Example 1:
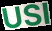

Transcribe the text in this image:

USI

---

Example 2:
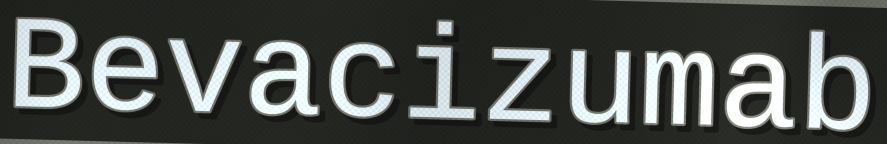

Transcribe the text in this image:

Bevacizumab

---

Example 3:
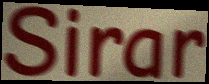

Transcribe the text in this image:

Sirar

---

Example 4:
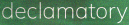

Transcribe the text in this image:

declamatory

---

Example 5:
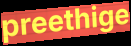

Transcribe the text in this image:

preethige